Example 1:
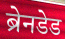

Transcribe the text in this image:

ब्रेनडेड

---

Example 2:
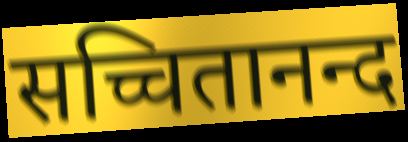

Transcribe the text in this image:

सच्चितानन्द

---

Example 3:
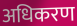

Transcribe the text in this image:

अधिकरण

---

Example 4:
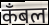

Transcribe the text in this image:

कँबल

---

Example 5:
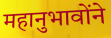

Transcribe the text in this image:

महानुभावोंने